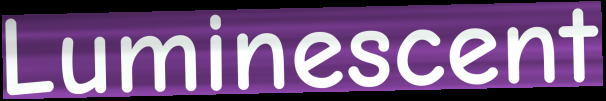
Luminescent